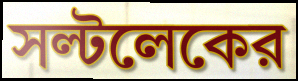
সল্টলেকের